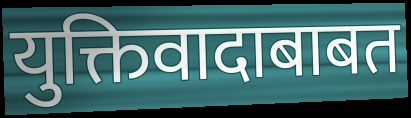
युक्तिवादाबाबत